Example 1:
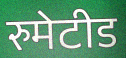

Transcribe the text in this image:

रुमेटीड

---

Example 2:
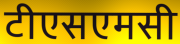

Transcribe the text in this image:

टीएसएमसी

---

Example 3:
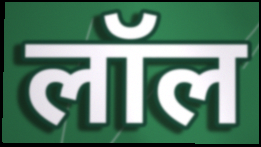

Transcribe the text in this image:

लॉल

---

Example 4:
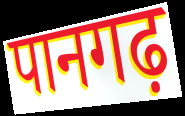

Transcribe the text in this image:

पानगढ़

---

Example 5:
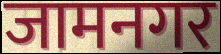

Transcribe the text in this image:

जामनगर